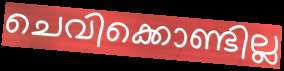
ചെവിക്കൊണ്ടില്ല